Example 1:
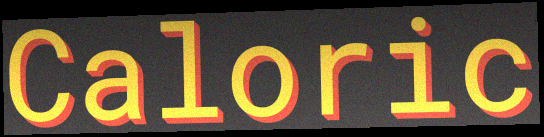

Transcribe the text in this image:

Caloric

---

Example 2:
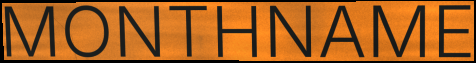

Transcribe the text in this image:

MONTHNAME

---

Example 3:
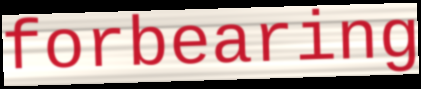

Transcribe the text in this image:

forbearing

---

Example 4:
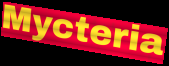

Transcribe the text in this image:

Mycteria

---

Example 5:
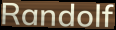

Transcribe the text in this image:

Randolf